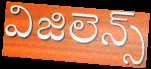
విజిలెన్స్